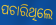
ପଚାରିଥିଲେ